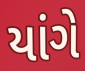
યાંગે